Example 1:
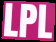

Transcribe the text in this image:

LPL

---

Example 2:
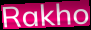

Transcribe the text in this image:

Rakho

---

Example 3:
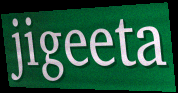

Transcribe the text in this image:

jigeeta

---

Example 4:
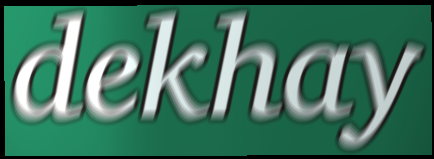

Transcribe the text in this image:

dekhay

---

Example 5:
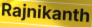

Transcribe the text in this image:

Rajnikanth